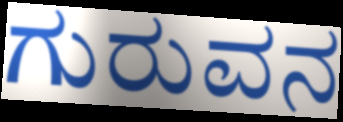
ಗುರುವನ